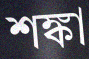
শঙ্কা